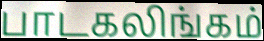
பாடகலிங்கம்